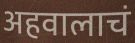
अहवालाचं